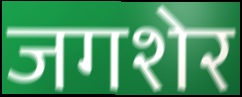
जगशेर